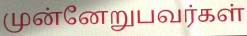
முன்னேறுபவர்கள்